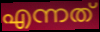
എന്നത്